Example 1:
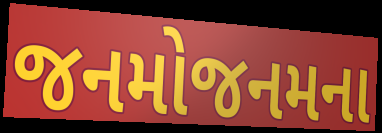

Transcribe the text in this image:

જનમોજનમના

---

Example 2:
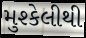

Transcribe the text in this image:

મુશ્કેલીથી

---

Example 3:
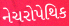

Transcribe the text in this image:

નેચરોપેથિક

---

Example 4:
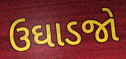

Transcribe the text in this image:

ઉઘાડજો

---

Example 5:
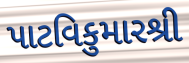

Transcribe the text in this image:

પાટવિકુમારશ્રી